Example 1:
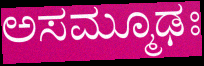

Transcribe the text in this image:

ಅಸಮ್ಮೂಢಃ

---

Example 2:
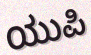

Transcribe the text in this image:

ಯುಪಿ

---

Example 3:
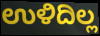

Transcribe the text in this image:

ಉಳಿದಿಲ್ಲ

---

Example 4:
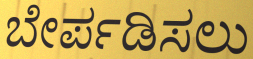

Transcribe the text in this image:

ಬೇರ್ಪಡಿಸಲು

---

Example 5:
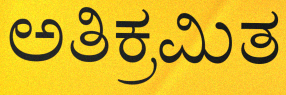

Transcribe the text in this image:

ಅತಿಕ್ರಮಿತ